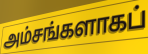
அம்சங்களாகப்